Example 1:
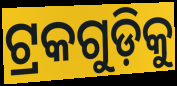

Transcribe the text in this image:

ଟ୍ରକଗୁଡ଼ିକୁ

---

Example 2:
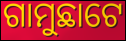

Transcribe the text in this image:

ଗାମୁଛାଟେ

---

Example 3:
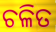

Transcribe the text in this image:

ଚଳିତ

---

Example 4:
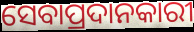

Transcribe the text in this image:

ସେବାପ୍ରଦାନକାରୀ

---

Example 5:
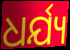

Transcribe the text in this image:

ଧର୍ଯ୍ୟ